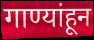
गाण्यांहून